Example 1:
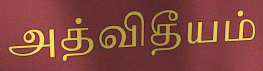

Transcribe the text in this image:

அத்விதீயம்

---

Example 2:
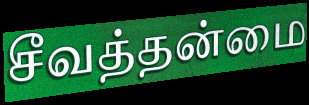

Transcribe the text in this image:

சீவத்தன்மை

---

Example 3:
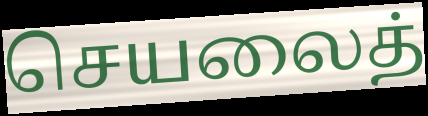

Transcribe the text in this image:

செயலைத்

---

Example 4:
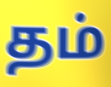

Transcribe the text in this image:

தம்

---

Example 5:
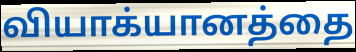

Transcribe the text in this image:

வியாக்யானத்தை